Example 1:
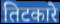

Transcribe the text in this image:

तिटकारे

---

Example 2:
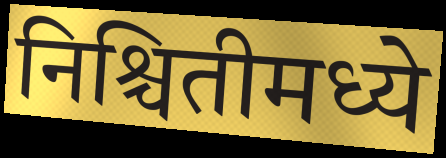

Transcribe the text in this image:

निश्चितीमध्ये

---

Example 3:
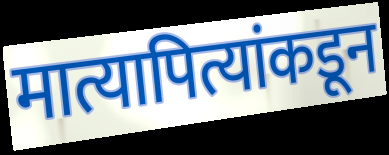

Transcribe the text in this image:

मात्यापित्यांकडून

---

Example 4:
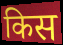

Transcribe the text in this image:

किस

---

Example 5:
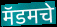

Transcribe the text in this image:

मॅडमचे